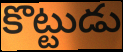
కొట్టుడు